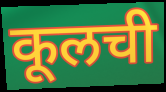
कूलची